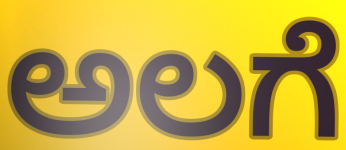
ಅಲಗೆ